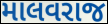
માલવરાજ